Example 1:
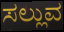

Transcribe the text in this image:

ಸಲ್ಲುವ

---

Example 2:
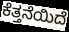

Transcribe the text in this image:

ಕೆತ್ತನೆಯಿದೆ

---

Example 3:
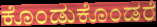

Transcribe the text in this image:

ಕೊಂಡುಕೊಂಡರೆ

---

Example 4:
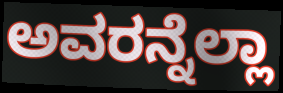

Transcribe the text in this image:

ಅವರನ್ನೆಲ್ಲಾ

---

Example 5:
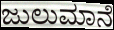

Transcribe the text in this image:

ಜುಲುಮಾನೆ